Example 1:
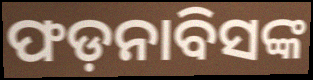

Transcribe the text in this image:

ଫଡ଼ନାବିସଙ୍କ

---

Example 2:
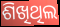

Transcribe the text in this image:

ଶିଖିଥିଲ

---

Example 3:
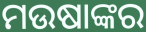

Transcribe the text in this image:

ମଉଷାଙ୍କର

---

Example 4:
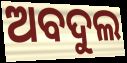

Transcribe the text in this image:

ଅବଦୁଲ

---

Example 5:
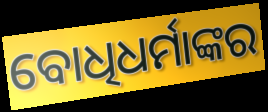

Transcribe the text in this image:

ବୋଧିଧର୍ମାଙ୍କର